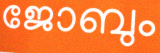
ജോബും